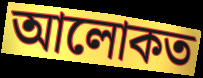
আলোকত